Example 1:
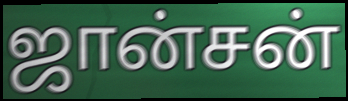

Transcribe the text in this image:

ஜான்சன்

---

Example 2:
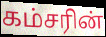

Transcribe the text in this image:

கம்சரின்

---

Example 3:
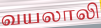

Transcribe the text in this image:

வயலாலி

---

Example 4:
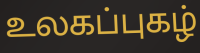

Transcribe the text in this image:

உலகப்புகழ்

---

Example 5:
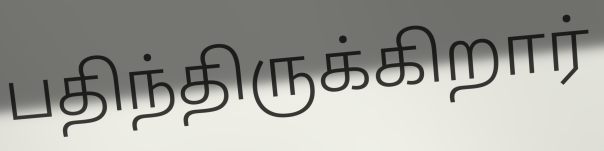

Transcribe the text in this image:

பதிந்திருக்கிறார்